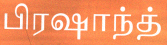
பிரஷாந்த்